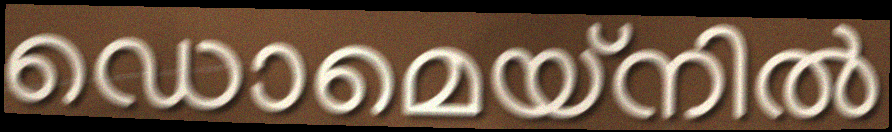
ഡൊമെയ്നിൽ